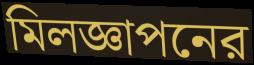
মিলজ্ঞাপনের